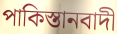
পাকিস্তানবাদী